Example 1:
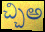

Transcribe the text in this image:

చ్చిఅ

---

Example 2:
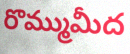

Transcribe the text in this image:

రొమ్ముమీద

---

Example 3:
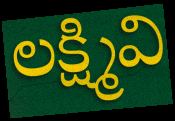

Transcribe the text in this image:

లక్ష్మివి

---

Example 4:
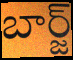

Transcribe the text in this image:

బార్జ్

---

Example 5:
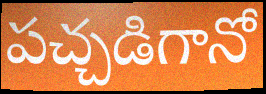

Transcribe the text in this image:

పచ్చడిగానో